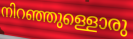
നിറഞ്ഞുള്ളൊരു